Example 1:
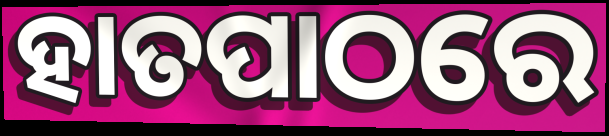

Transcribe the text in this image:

ହାତପାଠରେ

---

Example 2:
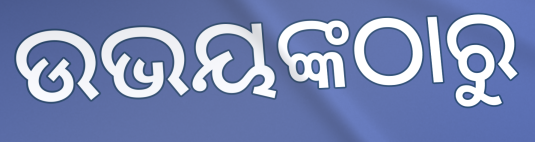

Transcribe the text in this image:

ଉଭୟଙ୍କଠାରୁ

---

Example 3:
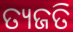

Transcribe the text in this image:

ତ୍ୟଜତି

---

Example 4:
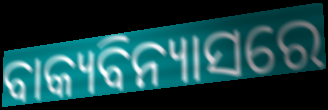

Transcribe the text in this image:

ବାକ୍ୟବିନ୍ୟାସରେ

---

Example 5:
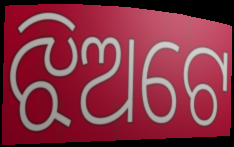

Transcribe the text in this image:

ଝିଅଟେ